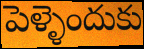
పెళ్ళెందుకు